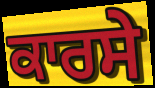
ਕਾਰਸੇ